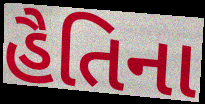
હૈતિના